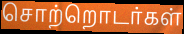
சொற்றொடர்கள்